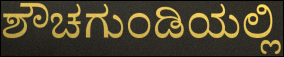
ಶೌಚಗುಂಡಿಯಲ್ಲಿ